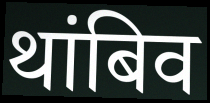
थांबिव